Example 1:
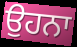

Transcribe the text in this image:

ਉਹਨਾ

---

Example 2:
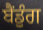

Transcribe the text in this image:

ਬੈਂਡੁੰਗ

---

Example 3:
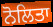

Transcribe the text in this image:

ਨੋਲਿਤਾ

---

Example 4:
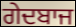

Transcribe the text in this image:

ਗੇਦਬਾਜ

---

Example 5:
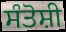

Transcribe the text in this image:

ਸੰਤੋਸ਼ੀ